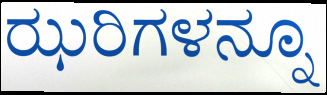
ಝರಿಗಳನ್ನೂ